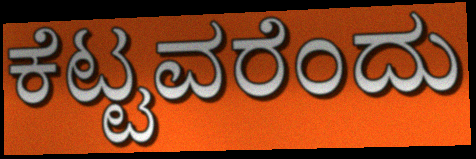
ಕೆಟ್ಟವರೆಂದು